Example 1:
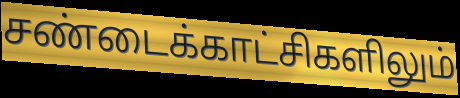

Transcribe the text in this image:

சண்டைக்காட்சிகளிலும்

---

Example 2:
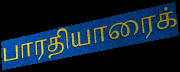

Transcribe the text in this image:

பாரதியாரைக்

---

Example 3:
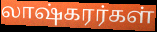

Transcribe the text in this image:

லாஷ்கரர்கள்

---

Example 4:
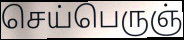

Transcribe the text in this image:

செய்பெருஞ்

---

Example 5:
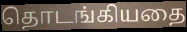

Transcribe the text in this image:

தொடங்கியதை